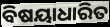
ବିଷୟାଧାରିତ